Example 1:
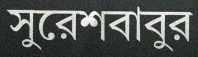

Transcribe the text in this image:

সুরেশবাবুর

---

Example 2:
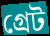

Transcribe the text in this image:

গ্রেট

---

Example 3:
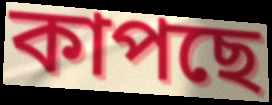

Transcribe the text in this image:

কাপছে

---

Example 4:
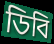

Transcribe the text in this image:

ডিবি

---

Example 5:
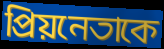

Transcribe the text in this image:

প্রিয়নেতাকে